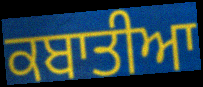
ਕਬਾਤੀਆ